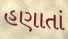
હણાતાં